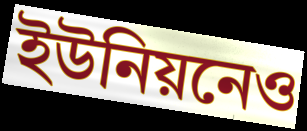
ইউনিয়নেও